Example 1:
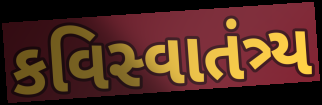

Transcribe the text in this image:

કવિસ્વાતંત્ર્ય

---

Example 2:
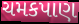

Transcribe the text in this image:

ચમકપાણ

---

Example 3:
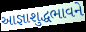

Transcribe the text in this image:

આજ્ઞાશુદ્ધભાવને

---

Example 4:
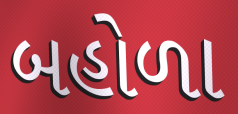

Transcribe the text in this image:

બહોળા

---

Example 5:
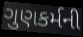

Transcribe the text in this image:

ગુણકર્મની